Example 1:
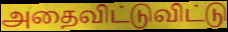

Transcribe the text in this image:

அதைவிட்டுவிட்டு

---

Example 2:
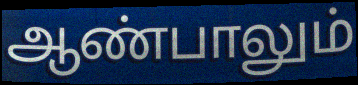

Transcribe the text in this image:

ஆண்பாலும்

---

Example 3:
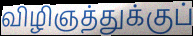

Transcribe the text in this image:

விழிஞத்துக்குப்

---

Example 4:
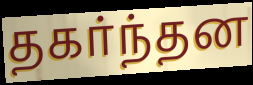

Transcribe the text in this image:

தகர்ந்தன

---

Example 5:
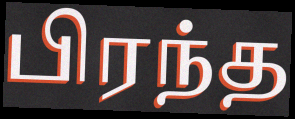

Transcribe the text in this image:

பிரந்த